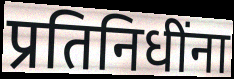
प्रतिनिधींना